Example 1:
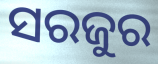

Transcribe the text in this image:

ସରଜୁର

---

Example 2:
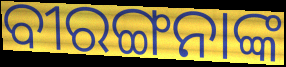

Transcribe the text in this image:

ବୀରଙ୍ଗନାଙ୍କ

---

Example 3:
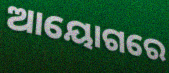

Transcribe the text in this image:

ଆୟୋଗରେ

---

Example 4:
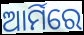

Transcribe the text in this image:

ଆର୍ମିରେ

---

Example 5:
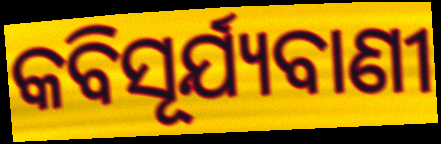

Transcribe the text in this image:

କବିସୂର୍ଯ୍ୟବାଣୀ